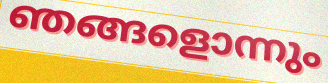
ഞങ്ങളൊന്നും